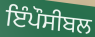
ਇੰਪੌਸੀਬਲ